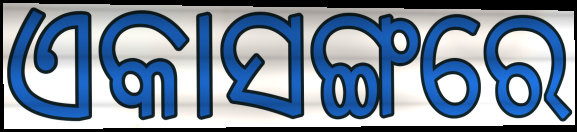
ଏକାସଙ୍ଗରେ